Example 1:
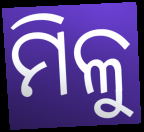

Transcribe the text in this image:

ମିଳୁ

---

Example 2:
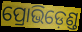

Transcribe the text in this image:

ପ୍ରୋଭିଡ଼େଣ୍ଡ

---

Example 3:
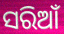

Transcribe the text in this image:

ସରିଆଁ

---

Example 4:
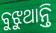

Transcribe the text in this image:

ବୁଝୁଥାନ୍ତି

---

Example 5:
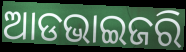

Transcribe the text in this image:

ଆଡଭାଇଜରି